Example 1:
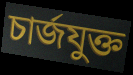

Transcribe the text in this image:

চার্জযুক্ত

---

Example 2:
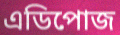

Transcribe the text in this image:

এডিপোজ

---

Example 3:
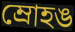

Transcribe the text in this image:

ম্রোহঙ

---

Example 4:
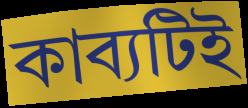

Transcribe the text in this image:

কাব্যটিই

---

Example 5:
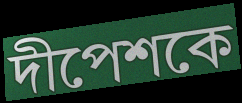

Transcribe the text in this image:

দীপেশকে